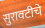
सुरावटीचे